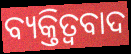
ବ୍ଯକ୍ତିତ୍ଵବାଦ